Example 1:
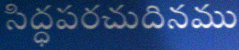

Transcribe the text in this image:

సిద్ధపరచుదినము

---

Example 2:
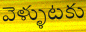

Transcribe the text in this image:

వెళ్ళుటకు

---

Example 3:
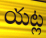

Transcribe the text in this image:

యట్ల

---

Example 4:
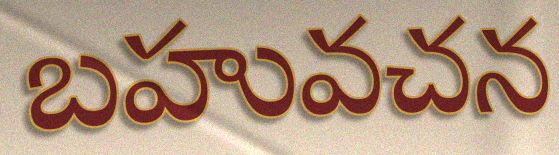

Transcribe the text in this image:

బహువచన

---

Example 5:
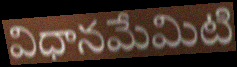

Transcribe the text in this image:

విధానమేమిటి